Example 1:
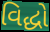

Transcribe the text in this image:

વિદ્ધો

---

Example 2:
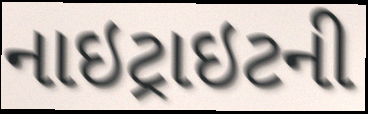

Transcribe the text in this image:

નાઇટ્રાઇટની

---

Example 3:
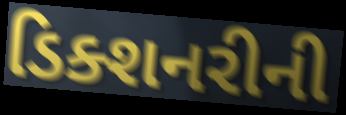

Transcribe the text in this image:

ડિક્શનરીની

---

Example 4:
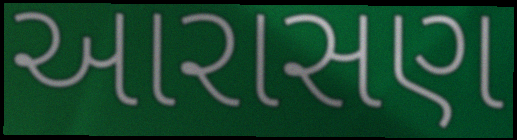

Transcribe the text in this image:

આરાસણ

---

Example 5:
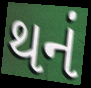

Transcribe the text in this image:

થનં